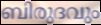
ബിരുദവും